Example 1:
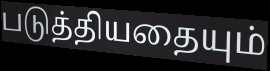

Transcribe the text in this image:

படுத்தியதையும்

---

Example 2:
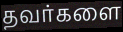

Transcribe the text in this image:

தவர்களை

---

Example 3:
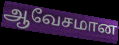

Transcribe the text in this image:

ஆவேசமான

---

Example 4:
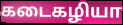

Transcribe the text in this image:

கடைகழியா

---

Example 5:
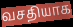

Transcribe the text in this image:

வசதியாக